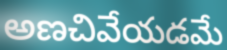
అణచివేయడమే